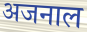
अजनाल